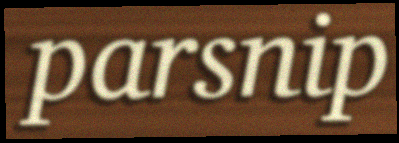
parsnip